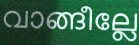
വാങ്ങീല്ലേ